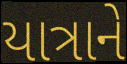
યાત્રાને